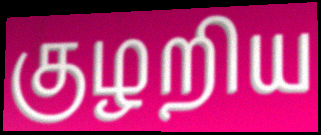
குழறிய